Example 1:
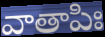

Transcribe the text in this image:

వాతాపిః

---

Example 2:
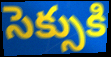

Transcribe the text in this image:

సెక్సుకి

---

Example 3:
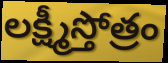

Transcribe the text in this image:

లక్ష్మీస్తోత్రం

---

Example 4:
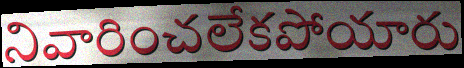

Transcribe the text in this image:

నివారించలేకపోయారు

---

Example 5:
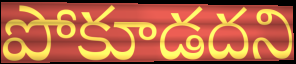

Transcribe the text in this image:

పోకూడదని